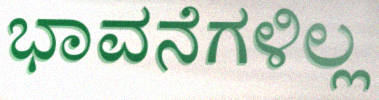
ಭಾವನೆಗಳಿಲ್ಲ